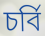
চৰ্বি